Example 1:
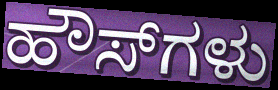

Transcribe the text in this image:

ಹೌಸ್‌ಗಳು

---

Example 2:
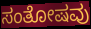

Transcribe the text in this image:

ಸಂತೋಷವು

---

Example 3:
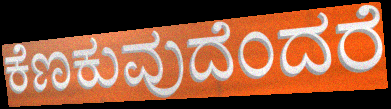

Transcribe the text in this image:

ಕೆಣಕುವುದೆಂದರೆ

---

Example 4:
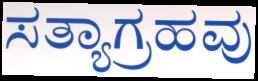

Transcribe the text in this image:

ಸತ್ಯಾಗ್ರಹವು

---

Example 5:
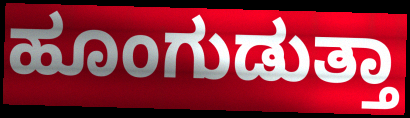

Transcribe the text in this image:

ಹೂಂಗುಡುತ್ತಾ